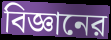
বিজ্ঞানের